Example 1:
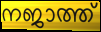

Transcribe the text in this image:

നജാത്ത്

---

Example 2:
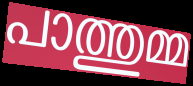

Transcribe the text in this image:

പാത്തുമ്മ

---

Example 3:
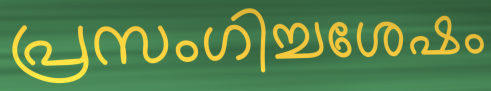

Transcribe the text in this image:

പ്രസംഗിച്ചശേഷം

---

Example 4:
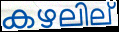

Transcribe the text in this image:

കഴലില്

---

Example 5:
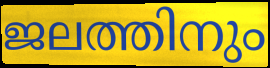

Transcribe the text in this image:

ജലത്തിനും